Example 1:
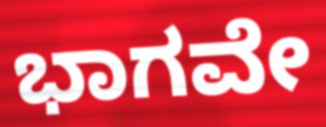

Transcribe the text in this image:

ಭಾಗವೇ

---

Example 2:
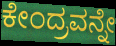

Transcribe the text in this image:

ಕೇಂದ್ರವನ್ನೇ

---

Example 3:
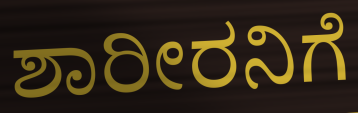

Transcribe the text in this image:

ಶಾರೀರನಿಗೆ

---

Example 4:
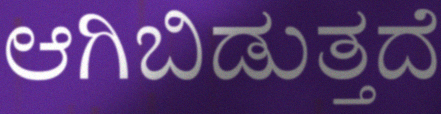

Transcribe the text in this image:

ಆಗಿಬಿಡುತ್ತದೆ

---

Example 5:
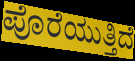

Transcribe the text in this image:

ಪೊರೆಯುತ್ತಿದೆ